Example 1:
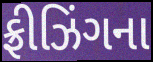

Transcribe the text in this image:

ફ્રીઝિંગના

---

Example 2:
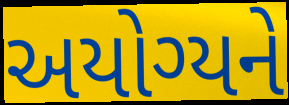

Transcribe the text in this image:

અયોગ્યને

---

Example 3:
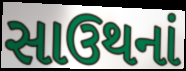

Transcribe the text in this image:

સાઉથનાં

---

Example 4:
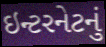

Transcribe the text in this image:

ઇન્ટરનેટનું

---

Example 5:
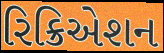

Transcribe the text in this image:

રિક્રિએશન